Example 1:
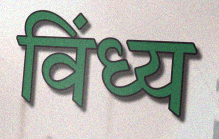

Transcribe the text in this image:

विंध्य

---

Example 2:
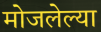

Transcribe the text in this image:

मोजलेल्या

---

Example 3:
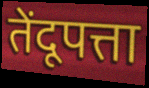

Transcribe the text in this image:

तेंदूपत्ता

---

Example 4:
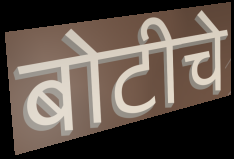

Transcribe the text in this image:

बोटीचे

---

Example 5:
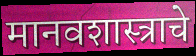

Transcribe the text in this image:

मानवशास्त्राचे